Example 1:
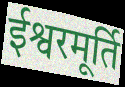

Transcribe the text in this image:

ईश्वरमूर्ति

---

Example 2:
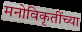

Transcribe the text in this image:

मनोविकृतींच्या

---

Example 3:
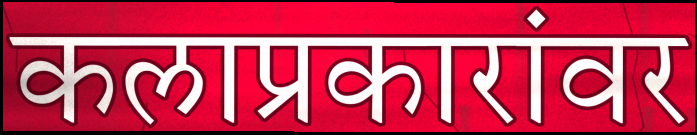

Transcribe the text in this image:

कलाप्रकारांवर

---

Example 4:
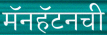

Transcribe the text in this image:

मॅनहॅटनची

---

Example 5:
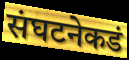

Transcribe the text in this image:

संघटनेकडं